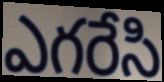
ఎగరేసి